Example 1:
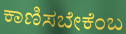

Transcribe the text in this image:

ಕಾಣಿಸಬೇಕೆಂಬ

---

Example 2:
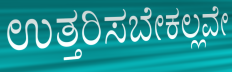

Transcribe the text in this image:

ಉತ್ತರಿಸಬೇಕಲ್ಲವೇ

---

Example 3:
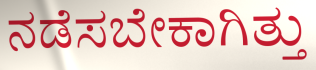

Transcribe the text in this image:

ನಡೆಸಬೇಕಾಗಿತ್ತು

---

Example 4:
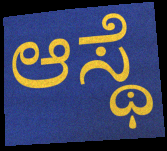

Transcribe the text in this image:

ಆಸ್ಥೆ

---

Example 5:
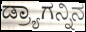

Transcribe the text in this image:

ಡ್ರ್ಯಾಗನ್ನಿನ